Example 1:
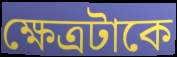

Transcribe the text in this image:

ক্ষেত্রটাকে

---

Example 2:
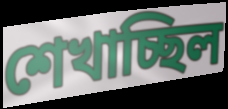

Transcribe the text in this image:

শেখাচ্ছিল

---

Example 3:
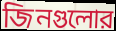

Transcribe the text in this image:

জিনগুলোর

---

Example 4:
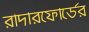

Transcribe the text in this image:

রাদারফোর্ডের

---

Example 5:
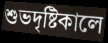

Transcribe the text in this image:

শুভদৃষ্টিকালে